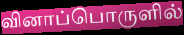
வினாப்பொருளில்